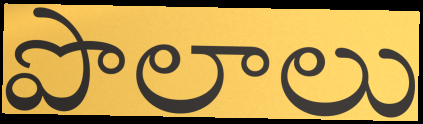
పొలాలు